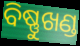
ବିଷ୍ଣୁଖଣ୍ଡ